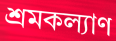
শ্রমকল্যাণ